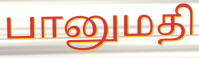
பானுமதி